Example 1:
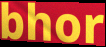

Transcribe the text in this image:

bhor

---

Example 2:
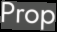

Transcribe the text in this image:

Prop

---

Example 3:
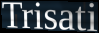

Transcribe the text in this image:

Trisati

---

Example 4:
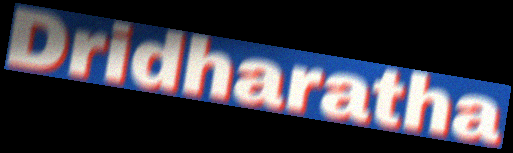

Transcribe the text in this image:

Dridharatha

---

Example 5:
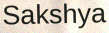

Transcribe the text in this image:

Sakshya